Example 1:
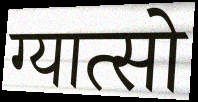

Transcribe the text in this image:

ग्यात्सो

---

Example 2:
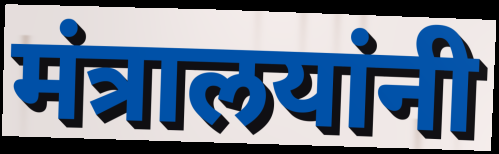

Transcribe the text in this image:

मंत्रालयांनी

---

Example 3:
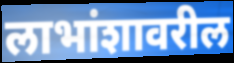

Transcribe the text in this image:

लाभांशावरील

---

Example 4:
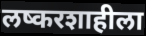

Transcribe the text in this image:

लष्करशाहीला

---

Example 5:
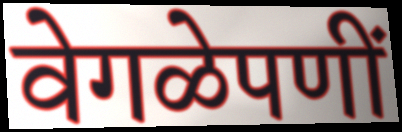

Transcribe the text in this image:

वेगळेपणीं